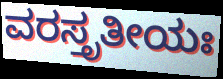
ವರಸ್ತೃತೀಯಃ